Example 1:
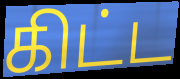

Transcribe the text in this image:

கிட்ட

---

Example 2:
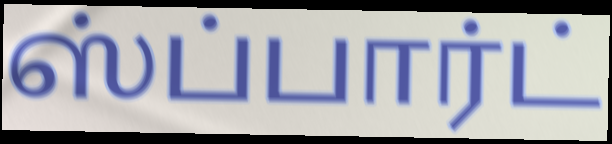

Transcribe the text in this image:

ஸ்ப்பார்ட்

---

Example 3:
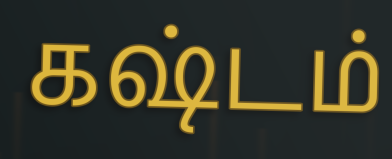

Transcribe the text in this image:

கஷ்டம்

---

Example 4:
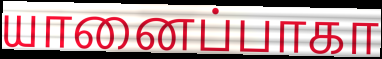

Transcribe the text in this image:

யானைப்பாகா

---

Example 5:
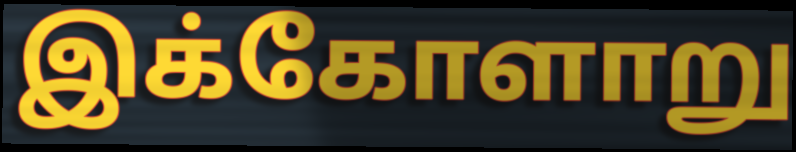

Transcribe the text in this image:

இக்கோளாறு